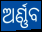
ଅର୍ଣ୍ଣବ